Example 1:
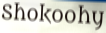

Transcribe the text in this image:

Shokoohy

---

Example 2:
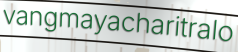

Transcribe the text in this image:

vangmayacharitralo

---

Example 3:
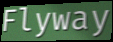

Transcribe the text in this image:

Flyway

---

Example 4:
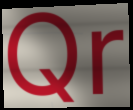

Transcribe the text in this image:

Qr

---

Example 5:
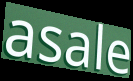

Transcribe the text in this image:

asale